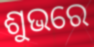
ଶୁଭରେ